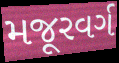
મજૂરવર્ગ